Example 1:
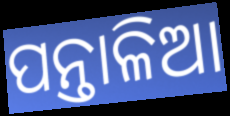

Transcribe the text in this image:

ପନ୍ତାଳିଆ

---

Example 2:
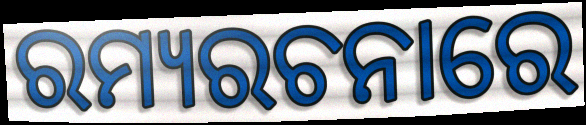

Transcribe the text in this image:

ରମ୍ୟରଚନାରେ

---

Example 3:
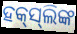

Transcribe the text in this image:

ହକ୍‌ସ୍‌ଲିଙ୍କ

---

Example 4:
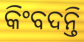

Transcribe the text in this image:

କିଂବଦନ୍ତି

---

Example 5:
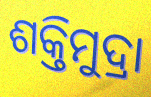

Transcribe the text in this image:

ଶକ୍ତିମୁଦ୍ରା